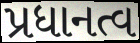
પ્રધાનત્વ